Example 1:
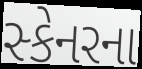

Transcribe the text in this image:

સ્કેનરના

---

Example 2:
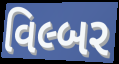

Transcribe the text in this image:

વિલ્બર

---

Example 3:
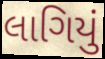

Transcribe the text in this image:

લાગિયું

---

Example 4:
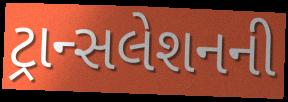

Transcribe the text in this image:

ટ્રાન્સલેશનની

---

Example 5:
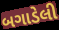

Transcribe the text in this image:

બગાડેલી